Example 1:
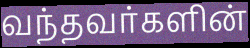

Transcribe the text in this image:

வந்தவர்களின்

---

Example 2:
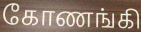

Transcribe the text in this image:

கோணங்கி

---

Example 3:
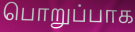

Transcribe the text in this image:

பொறுப்பாக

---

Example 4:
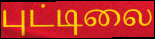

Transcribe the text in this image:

புட்டிலை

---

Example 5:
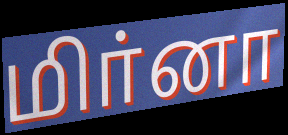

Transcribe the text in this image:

மிர்னா